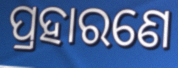
ପ୍ରହାରଣେ